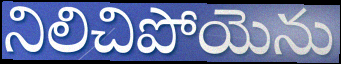
నిలిచిపోయెను